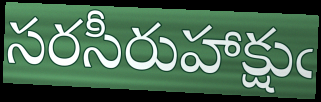
సరసీరుహాక్షుఁ